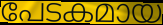
പേടകമായ